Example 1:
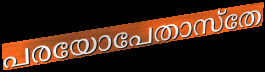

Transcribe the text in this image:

പരയോപേതാസ്തേ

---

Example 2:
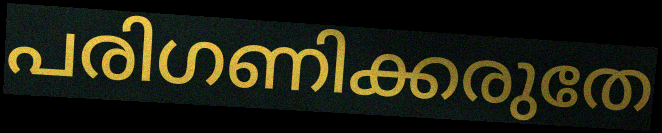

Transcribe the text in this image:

പരിഗണിക്കരുതേ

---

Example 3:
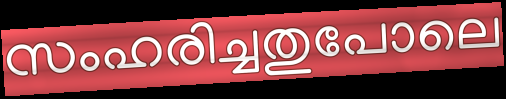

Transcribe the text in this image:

സംഹരിച്ചതുപോലെ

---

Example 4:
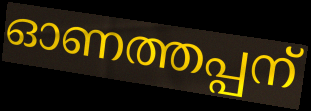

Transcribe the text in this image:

ഓണത്തപ്പന്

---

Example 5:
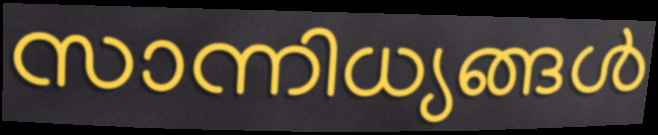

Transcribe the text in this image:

സാന്നിധ്യങ്ങൾ